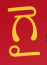
గై